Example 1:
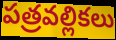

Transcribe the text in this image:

పత్రవల్లికలు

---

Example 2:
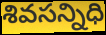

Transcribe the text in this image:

శివసన్నిధి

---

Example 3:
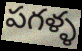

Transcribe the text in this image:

పగళ్ళ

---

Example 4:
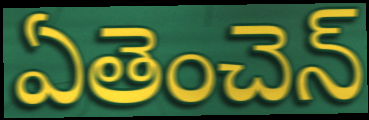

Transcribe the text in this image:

ఏతెంచెన్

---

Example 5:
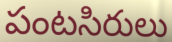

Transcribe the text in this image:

పంటసిరులు